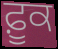
ਫ਼ੂਕ